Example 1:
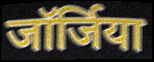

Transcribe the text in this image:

जॉर्जिया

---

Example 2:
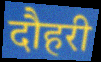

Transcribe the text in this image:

दौहरी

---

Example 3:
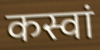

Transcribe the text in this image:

कस्‍वां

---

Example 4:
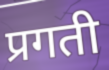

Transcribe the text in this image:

प्रगती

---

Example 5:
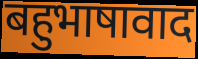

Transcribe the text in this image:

बहुभाषावाद